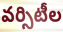
వర్సిటీల